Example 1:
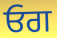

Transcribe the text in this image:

ਓਗ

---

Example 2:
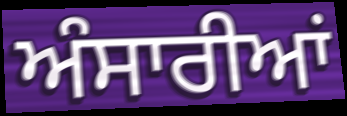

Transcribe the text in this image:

ਅੰਸਾਰੀਆਂ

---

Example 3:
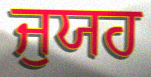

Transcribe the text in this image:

ਜੁਯਹ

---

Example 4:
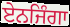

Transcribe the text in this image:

ਏਨਜਿੰਗਾ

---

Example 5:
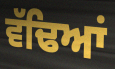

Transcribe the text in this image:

ਵੱਢਿਆਂ